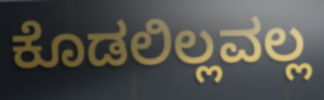
ಕೊಡಲಿಲ್ಲವಲ್ಲ